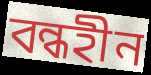
বন্ধহীন